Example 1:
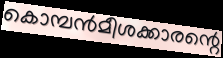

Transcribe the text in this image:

കൊമ്പൻമീശക്കാരന്റെ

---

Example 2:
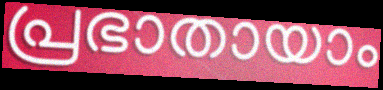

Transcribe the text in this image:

പ്രഭാതായാം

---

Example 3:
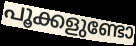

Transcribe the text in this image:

പൂക്കളുണ്ടോ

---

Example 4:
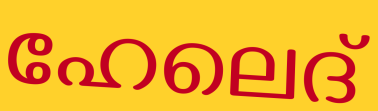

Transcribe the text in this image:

ഹേലെദ്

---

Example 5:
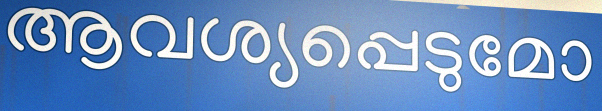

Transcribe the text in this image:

ആവശ്യപ്പെടുമോ